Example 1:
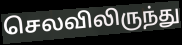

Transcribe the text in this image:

செலவிலிருந்து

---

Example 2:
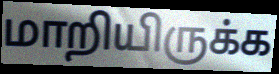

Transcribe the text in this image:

மாறியிருக்க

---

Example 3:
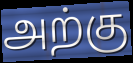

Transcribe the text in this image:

அற்கு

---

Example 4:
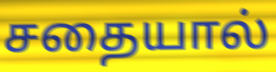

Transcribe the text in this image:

சதையால்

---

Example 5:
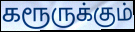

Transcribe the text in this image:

கரூருக்கும்